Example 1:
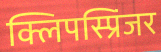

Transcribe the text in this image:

क्लिपस्प्रिंजर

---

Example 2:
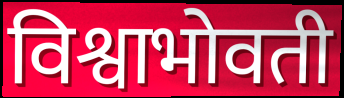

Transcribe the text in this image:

विश्वाभोवती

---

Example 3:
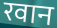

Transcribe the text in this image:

रवान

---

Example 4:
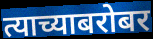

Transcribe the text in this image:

त्याच्याबरोबर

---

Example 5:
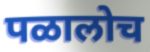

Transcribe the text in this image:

पळालोच